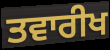
ਤਵਾਰੀਖ